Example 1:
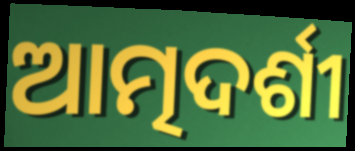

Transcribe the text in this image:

ଆତ୍ମଦର୍ଶୀ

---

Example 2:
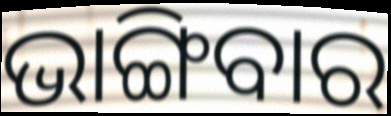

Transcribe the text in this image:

ଭାଙ୍ଗିବାର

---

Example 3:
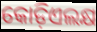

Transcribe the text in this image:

କୋଡ଼ିଏଲକ୍ଷ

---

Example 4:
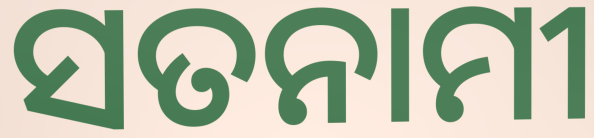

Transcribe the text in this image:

ସତନାମୀ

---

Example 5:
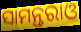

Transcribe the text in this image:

ସାମନ୍ତରାଓ